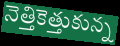
నెత్తికెత్తుకున్న